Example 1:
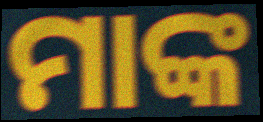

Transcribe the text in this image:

ମାଙ୍କ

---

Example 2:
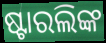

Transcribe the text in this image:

ଷ୍ଟାରଲିଙ୍କ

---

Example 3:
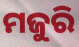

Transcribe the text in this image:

ମଜୁରି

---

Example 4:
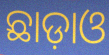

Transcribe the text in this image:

ଛାଡ଼ାଓ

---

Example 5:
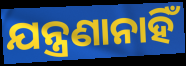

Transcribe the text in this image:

ଯନ୍ତ୍ରଣାନାହିଁ